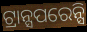
ଟ୍ରାନ୍ସପରେନ୍ସି